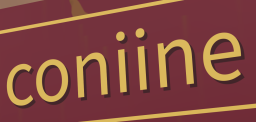
coniine